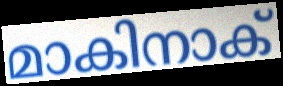
മാകിനാക്